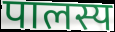
पालस्य